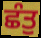
ਛੰਤੁ